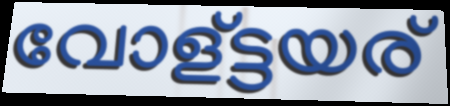
വോള്ട്ടയര്